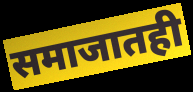
समाजातही